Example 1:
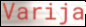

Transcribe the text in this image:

Varija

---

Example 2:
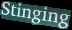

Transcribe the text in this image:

Stinging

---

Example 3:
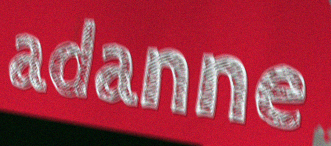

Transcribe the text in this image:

adanne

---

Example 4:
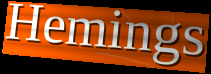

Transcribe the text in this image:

Hemings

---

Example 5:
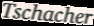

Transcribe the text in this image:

Tschacher